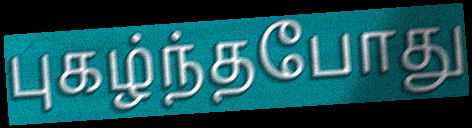
புகழ்ந்தபோது